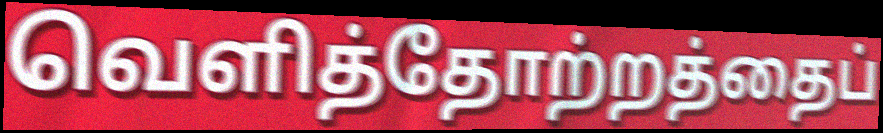
வெளித்தோற்றத்தைப்